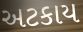
અટકાય